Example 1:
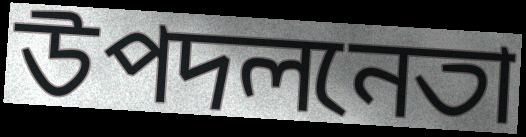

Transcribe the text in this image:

উপদলনেতা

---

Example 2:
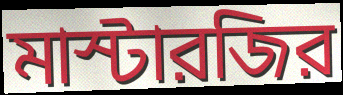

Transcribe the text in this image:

মাস্টারজির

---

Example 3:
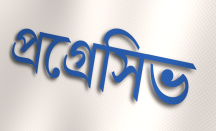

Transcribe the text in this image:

প্রগ্রেসিভ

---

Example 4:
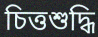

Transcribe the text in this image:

চিত্তশুদ্ধি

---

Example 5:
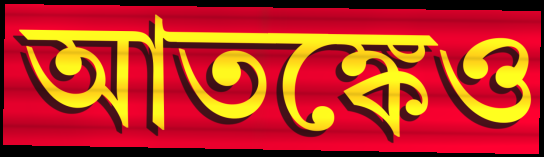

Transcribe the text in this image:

আতঙ্কেও